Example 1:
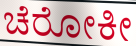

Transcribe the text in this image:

ಚೆರೋಕೀ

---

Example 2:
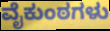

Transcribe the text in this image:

ವೈಕುಂಠಗಳು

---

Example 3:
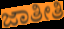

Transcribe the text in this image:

ಜಾತೀತಿ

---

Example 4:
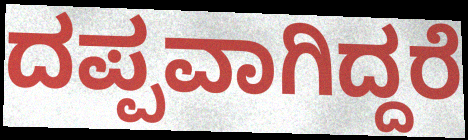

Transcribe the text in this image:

ದಪ್ಪವಾಗಿದ್ದರೆ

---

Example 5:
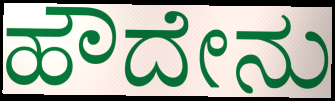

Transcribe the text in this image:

ಹೌದೇನು